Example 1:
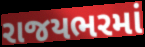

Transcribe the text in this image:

રાજયભરમાં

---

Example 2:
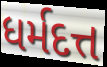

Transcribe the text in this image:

ધર્મદત્ત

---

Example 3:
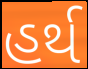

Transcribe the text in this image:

હર્થ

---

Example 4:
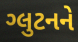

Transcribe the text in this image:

ગ્લુટનને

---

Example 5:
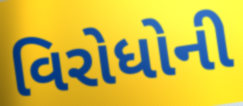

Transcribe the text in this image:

વિરોધોની